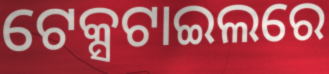
ଟେକ୍ସଟାଇଲରେ